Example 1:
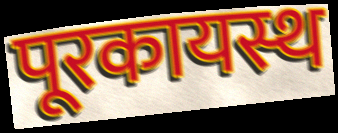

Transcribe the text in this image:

पूरकायस्थ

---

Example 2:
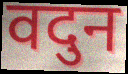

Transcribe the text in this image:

वदुन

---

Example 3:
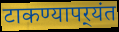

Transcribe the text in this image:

टाकण्यापर्यंत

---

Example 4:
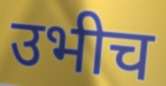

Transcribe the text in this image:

उभीच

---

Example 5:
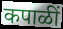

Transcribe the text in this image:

कपाळीं